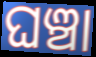
ଘଞ୍ଚା